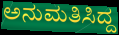
ಅನುಮತಿಸಿದ್ದ